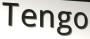
Tengo